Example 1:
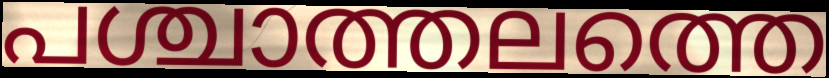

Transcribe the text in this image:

പശ്ചാത്തലത്തെ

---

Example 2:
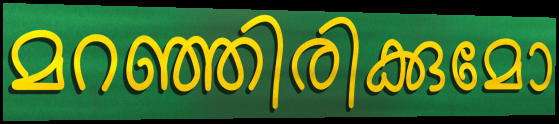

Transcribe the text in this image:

മറഞ്ഞിരിക്കുമോ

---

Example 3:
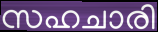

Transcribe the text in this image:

സഹചാരി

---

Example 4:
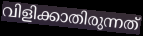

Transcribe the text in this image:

വിളിക്കാതിരുന്നത്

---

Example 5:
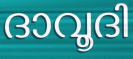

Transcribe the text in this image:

ദാവൂദി